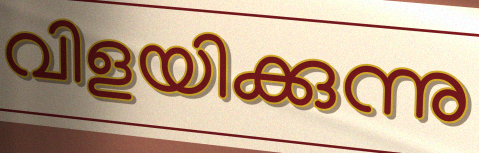
വിളയിക്കുന്നു